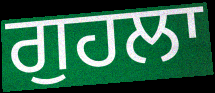
ਗੁਹਲਾ